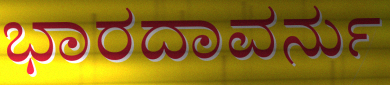
ಭಾರದಾವರ್ನು